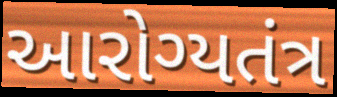
આરોગ્યતંત્ર